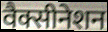
वैक्सीनेशन